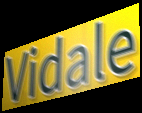
Vidale